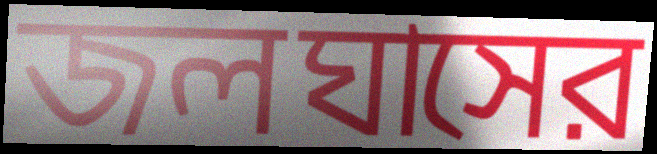
জলঘাসের